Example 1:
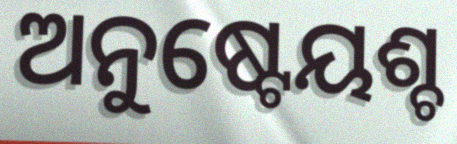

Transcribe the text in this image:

ଅନୁଷ୍ଟେୟଶ୍ଚ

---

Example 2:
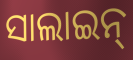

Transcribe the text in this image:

ସାଲାଇନ୍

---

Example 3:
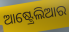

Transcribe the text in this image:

ଆଷ୍ଟ୍ରେଲିଆର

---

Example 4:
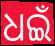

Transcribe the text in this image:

ଧଇଁ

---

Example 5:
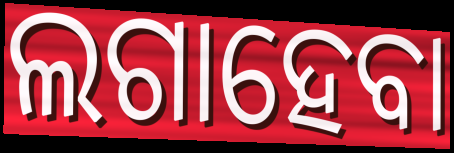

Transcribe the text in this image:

ଲଗାହେବା